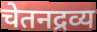
चेतनद्रव्य